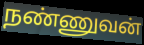
நண்ணுவன்